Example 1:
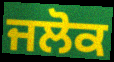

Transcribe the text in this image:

ਜਲੋਕ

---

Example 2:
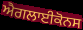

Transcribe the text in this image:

ਐਗਲਾਈਕੋਨਸ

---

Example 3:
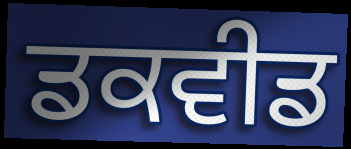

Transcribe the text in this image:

ਡਕਵੀਡ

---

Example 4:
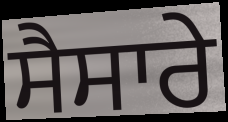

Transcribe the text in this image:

ਸੈਸਾਰੇ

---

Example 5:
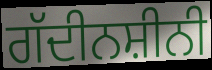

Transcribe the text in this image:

ਗੱਦੀਨਸ਼ੀਨੀ